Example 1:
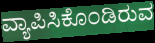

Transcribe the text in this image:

ವ್ಯಾಪಿಸಿಕೊಂಡಿರುವ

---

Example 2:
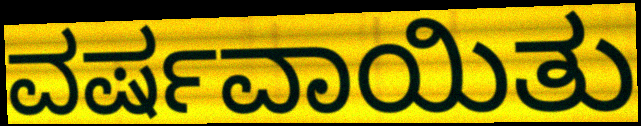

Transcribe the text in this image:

ವರ್ಷವಾಯಿತು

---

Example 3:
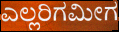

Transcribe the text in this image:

ಎಲ್ಲರಿಗಮೀಗ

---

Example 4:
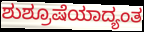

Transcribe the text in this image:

ಶುಶ್ರೂಷೆಯಾದ್ಯಂತ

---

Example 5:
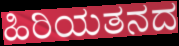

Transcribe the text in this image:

ಹಿರಿಯತನದ